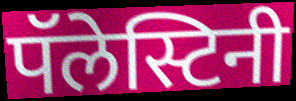
पॅलेस्टिनी